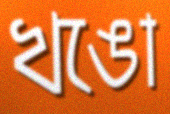
খঙো